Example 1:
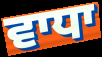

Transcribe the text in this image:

ਵਾਧਾ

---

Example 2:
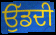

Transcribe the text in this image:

ਉੱਡਦੀ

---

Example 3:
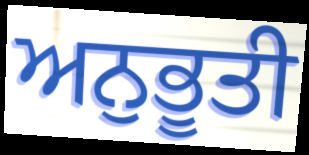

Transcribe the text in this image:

ਅਨੁਭੂਤੀ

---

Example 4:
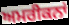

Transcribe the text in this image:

ਅਮਰੀਕਨਾਂ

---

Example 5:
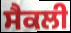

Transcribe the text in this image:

ਸੈਕਲੀ